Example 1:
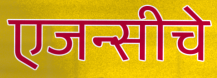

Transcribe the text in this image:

एजन्सीचे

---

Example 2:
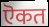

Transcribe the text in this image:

ऎकत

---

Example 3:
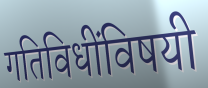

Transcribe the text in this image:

गतिविधींविषयी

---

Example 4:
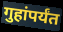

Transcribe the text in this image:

गुहांपर्यंत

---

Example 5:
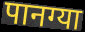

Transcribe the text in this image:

पानग्या